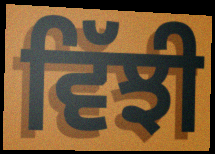
ਵਿੱਝੀ